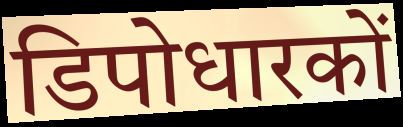
डिपोधारकों